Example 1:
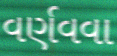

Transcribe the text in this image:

વર્ણવવા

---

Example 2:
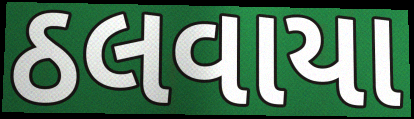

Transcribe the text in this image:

ઠલવાયા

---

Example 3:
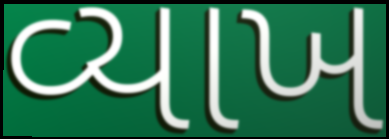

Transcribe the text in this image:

વ્યાખ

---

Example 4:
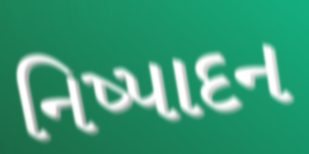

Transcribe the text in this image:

નિષ્પાદન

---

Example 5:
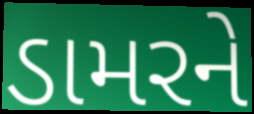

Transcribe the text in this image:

ડામરને